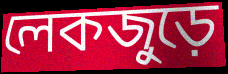
লেকজুড়ে